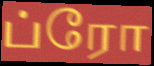
ப்ரோ